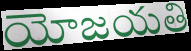
యోజయతి